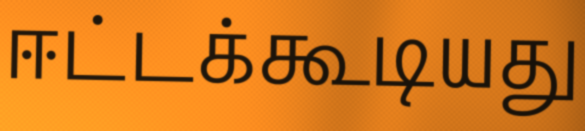
ஈட்டக்கூடியது